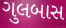
ગુલબાસ